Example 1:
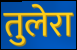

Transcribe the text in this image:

तुलेरा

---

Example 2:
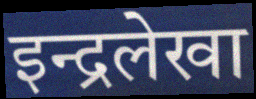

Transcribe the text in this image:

इन्द्रलेखा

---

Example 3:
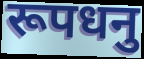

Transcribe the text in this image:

रूपधनु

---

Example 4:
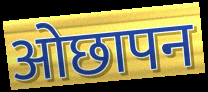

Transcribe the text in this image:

ओछापन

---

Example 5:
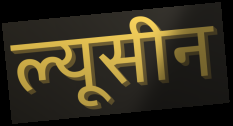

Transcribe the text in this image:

ल्यूसीन